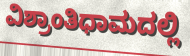
ವಿಶ್ರಾಂತಿಧಾಮದಲ್ಲಿ